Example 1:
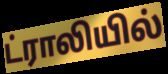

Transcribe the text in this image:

ட்ராலியில்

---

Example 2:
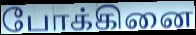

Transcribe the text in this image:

போக்கினை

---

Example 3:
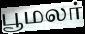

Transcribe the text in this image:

பூமலர்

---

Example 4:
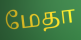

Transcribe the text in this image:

மேதா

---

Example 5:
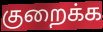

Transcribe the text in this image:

குறைக்க